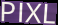
PIXL